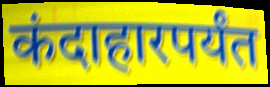
कंदाहारपर्यंत